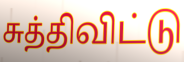
சுத்திவிட்டு